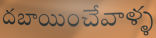
దబాయించేవాళ్ళ